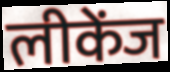
लीकेंज